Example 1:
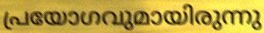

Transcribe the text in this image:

പ്രയോഗവുമായിരുന്നു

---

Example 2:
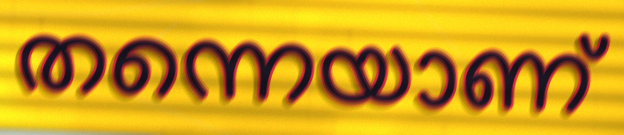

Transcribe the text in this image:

തന്നെയാണ്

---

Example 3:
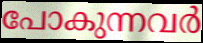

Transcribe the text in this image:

പോകുന്നവർ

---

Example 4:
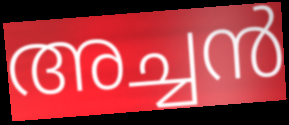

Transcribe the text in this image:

അച്ചൻ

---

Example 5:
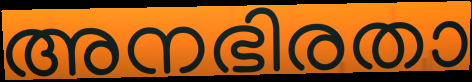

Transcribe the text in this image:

അനഭിരതാ